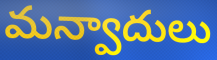
మన్వాదులు